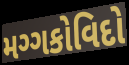
મગ્ગકોવિદો